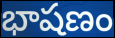
భాషణం